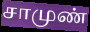
சாமுண்